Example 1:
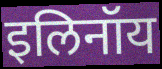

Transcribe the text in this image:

इलिनॉय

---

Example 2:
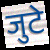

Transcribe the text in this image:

जुटे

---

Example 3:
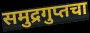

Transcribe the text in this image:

समुद्रगुप्तचा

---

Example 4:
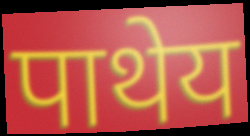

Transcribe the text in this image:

पाथेय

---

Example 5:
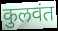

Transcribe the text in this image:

कुलवंत